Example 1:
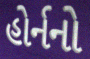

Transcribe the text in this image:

હોર્નનો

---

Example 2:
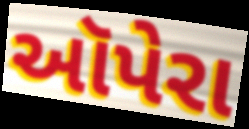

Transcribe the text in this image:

ઑપેરા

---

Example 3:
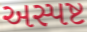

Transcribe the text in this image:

અસ્પષ્ટ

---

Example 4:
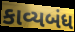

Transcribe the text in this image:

કાવ્યબંધ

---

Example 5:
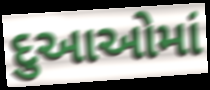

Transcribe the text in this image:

દુઆઓમાં